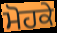
ਮੋਹਕੇ